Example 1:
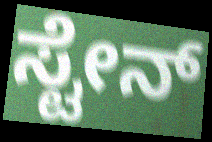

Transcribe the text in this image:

ಸ್ಟೇನ್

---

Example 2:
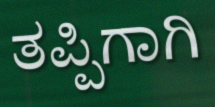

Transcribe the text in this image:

ತಪ್ಪಿಗಾಗಿ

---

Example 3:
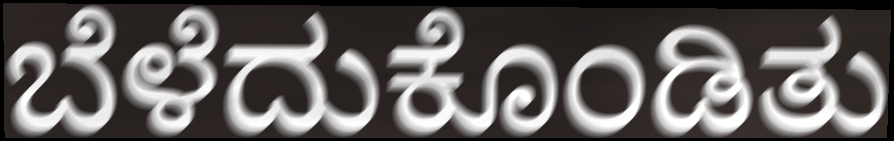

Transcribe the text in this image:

ಬೆಳೆದುಕೊಂಡಿತು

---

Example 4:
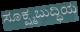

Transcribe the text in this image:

ಸೂಕ್ಷ್ಮಬುದ್ಧಿಯ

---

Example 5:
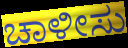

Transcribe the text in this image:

ಚಾಳೀಸು